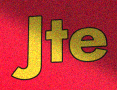
Jte